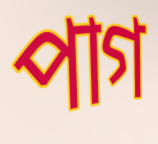
পাগ